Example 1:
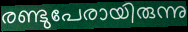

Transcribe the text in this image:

രണ്ടുപേരായിരുന്നു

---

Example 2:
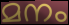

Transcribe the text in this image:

മനം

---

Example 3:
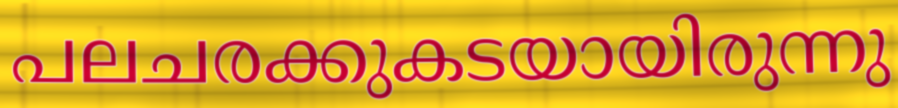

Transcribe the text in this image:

പലചരക്കുകടയായിരുന്നു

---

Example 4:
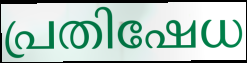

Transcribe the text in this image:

പ്രതിഷേധ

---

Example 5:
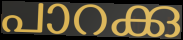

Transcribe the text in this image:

പാറക്കു